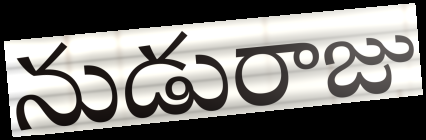
నుడురాజు